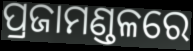
ପ୍ରଜାମଣ୍ଡଳରେ